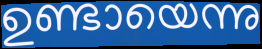
ഉണ്ടായെന്നു